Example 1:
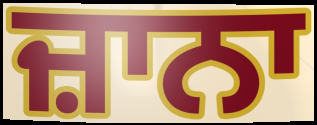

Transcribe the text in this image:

ਜ਼ਾਨਾ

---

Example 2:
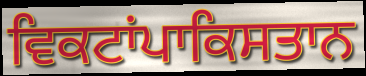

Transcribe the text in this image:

ਵਿਕਟਾਂਪਾਕਿਸਤਾਨ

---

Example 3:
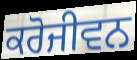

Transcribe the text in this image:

ਕਰੋਜੀਵਨ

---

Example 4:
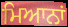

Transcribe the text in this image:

ਮਿਆਨਾਂ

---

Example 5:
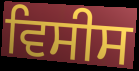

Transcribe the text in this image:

ਵਿਸੀਸ